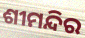
ଶୀମନ୍ଦିର